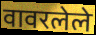
वावरलेले